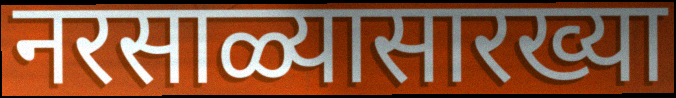
नरसाळ्यासारख्या